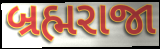
બ્રહ્મરાજા